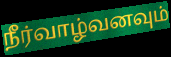
நீர்வாழ்வனவும்